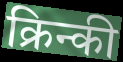
क्रिन्की